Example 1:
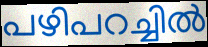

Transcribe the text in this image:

പഴിപറച്ചിൽ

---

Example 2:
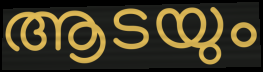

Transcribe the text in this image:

ആടയും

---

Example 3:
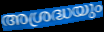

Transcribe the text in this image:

അശ്രദ്ധയും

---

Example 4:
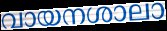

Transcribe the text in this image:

വായനശാലാ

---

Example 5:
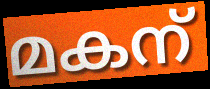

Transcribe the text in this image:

മകന്